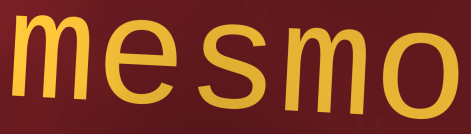
mesmo